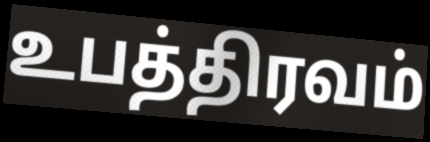
உபத்திரவம்